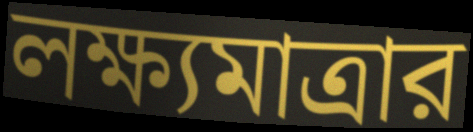
লক্ষ্যমাত্রার